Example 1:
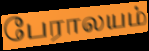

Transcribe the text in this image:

பேராலயம்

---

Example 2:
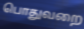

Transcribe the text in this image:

பொதுவறை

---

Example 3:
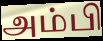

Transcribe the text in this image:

அம்பி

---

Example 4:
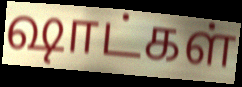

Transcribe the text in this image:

ஷாட்கள்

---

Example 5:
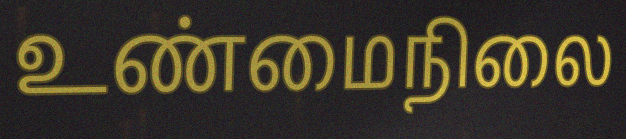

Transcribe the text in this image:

உண்மைநிலை